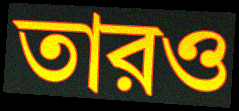
তারও